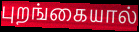
புறங்கையால்